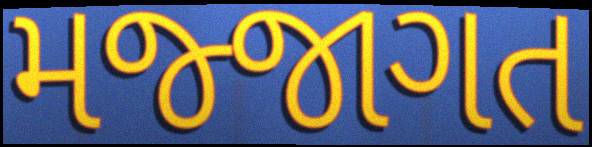
મજ્જાગત